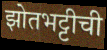
झोतभट्टीची